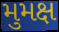
મુમક્ષ